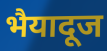
भैयादूज